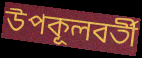
উপকূলবর্তী